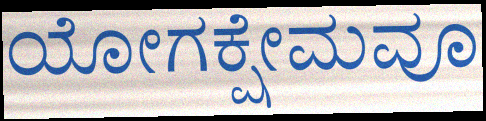
ಯೋಗಕ್ಷೇಮವೂ